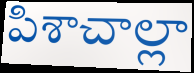
పిశాచాల్లా